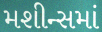
મશીન્સમાં